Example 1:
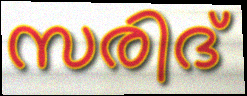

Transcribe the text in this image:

സരിദ്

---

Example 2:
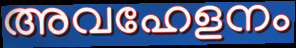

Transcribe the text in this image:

അവഹേളനം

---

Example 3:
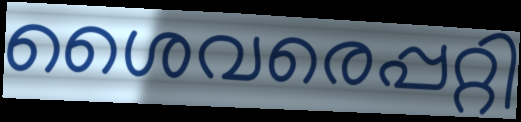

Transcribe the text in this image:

ശൈവരെപ്പറ്റി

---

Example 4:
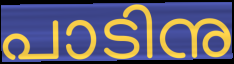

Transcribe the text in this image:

പാടിനു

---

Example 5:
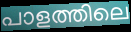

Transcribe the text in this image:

പാളത്തിലെ